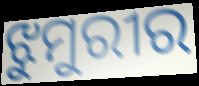
ଝୁମୁରୀର